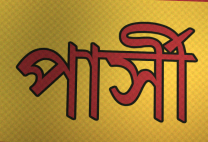
পার্সী